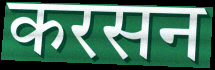
करसन